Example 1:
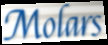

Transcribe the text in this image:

Molars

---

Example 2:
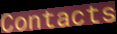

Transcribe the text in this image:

Contacts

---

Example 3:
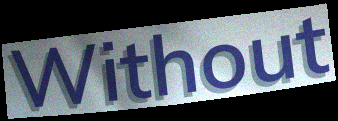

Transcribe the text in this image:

Without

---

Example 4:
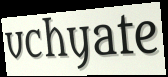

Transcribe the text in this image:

uchyate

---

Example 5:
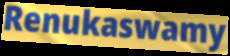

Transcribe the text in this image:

Renukaswamy